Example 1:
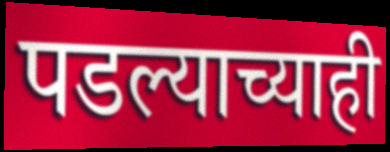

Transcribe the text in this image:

पडल्याच्याही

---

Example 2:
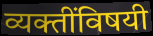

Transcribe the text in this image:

व्यक्तींविषयी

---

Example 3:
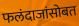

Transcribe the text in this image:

फलंदाजांसोबत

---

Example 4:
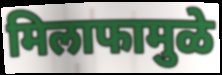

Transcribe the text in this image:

मिलाफामुळे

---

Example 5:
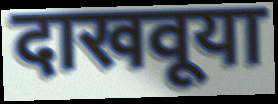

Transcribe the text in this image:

दाखवूया